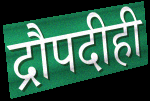
द्रौपदीही